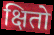
क्षितो